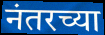
नंतरच्या